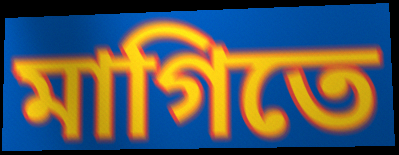
মাগিতে